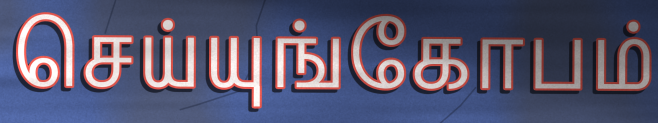
செய்யுங்கோபம்